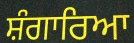
ਸ਼ੰਗਾਰਿਆ